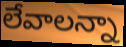
లేవాలన్నా